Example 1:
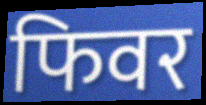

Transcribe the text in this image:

फिवर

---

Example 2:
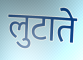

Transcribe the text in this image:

लुटाते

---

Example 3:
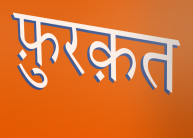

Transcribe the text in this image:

फ़ुरक़त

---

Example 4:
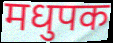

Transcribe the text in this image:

मधुपक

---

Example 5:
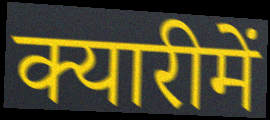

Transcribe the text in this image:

क्यारीमें